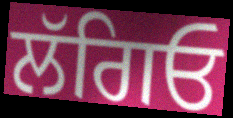
ਲੱਗਿਓ